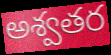
అశ్వతర